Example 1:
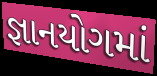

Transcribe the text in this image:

જ્ઞાનયોગમાં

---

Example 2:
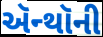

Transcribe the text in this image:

ઍન્થૉની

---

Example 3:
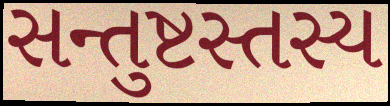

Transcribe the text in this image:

સન્તુષ્ટસ્તસ્ય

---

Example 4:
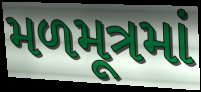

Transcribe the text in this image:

મળમૂત્રમાં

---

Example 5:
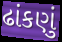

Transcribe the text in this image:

ઢાંકણું